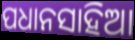
ପଧାନସାହିଆ